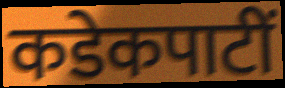
कडेकपाटीं